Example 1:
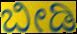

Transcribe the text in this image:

ಬೀಡಿ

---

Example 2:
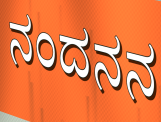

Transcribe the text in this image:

ನಂದನನ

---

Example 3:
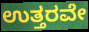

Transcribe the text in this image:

ಉತ್ತರವೇ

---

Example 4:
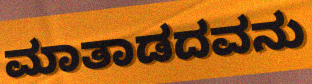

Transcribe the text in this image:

ಮಾತಾಡದವನು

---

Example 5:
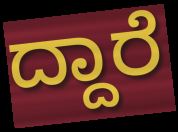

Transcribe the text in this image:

ದ್ದಾರೆ